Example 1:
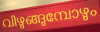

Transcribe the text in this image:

വിഴുങ്ങുമ്പോഴും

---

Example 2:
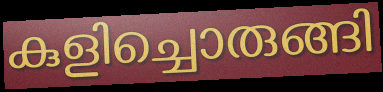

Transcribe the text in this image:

കുളിച്ചൊരുങ്ങി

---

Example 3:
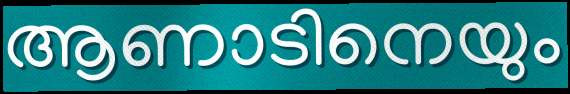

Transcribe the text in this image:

ആണാടിനെയും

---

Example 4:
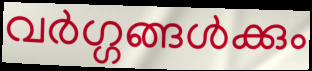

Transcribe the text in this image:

വർഗ്ഗങ്ങൾക്കും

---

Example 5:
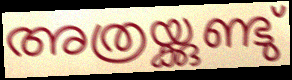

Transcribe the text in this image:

അത്രയ്ക്കുണ്ടു്